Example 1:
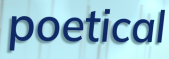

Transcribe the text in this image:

poetical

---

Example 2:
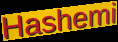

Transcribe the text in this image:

Hashemi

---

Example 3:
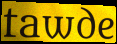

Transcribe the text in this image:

tawde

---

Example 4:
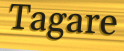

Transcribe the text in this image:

Tagare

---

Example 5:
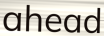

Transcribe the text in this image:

ahead